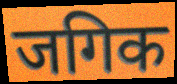
जगिक